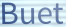
Buet